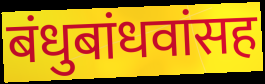
बंधुबांधवांसह